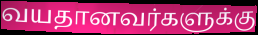
வயதானவர்களுக்கு